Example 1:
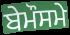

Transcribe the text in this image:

ਬੇਮੌਸਮੇ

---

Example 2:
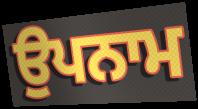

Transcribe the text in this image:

ਉਪਨਾਮ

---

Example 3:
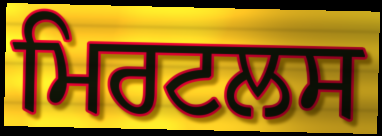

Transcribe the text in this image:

ਮਿਰਟਲਸ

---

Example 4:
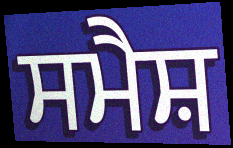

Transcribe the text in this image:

ਸਮੈਸ਼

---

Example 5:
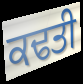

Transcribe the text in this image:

ਕਢਤੀ